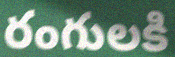
రంగులకి